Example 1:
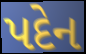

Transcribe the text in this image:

પદેન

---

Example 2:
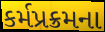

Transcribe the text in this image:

કર્મપ્રક્રમના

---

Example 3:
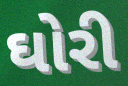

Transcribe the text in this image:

ઘોરી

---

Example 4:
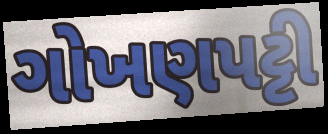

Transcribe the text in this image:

ગોખણપટ્ટી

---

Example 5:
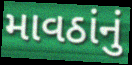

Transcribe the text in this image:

માવઠાંનું